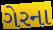
ગેરના